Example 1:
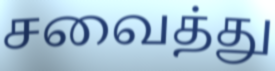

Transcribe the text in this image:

சவைத்து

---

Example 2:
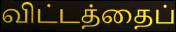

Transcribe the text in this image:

விட்டத்தைப்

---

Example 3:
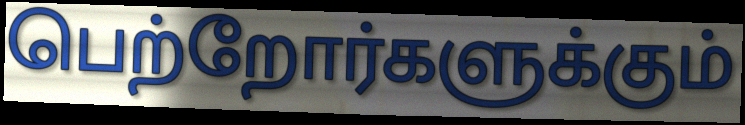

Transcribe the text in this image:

பெற்றோர்களுக்கும்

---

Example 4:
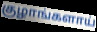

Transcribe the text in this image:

குழாங்களாய்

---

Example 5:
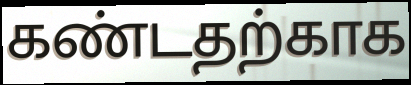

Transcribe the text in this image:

கண்டதற்காக